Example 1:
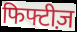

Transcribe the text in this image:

फिफ्टीज़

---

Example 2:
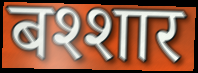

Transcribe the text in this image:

बश्शार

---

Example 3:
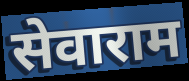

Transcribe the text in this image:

सेवाराम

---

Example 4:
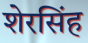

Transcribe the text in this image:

शेरसिंह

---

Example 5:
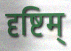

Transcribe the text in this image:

दृष्टिम्